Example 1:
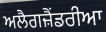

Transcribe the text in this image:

ਅਲੈਗਜ਼ੈਂਡਰੀਆ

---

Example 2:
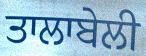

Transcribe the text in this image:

ਤਾਲਾਬੇਲੀ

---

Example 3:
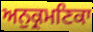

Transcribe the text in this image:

ਅਨੁਕ੍ਰਮਣਿਕਾ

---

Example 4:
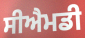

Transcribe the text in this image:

ਸੀਐਮਡੀ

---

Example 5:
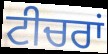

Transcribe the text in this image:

ਟੀਚਰਾਂ